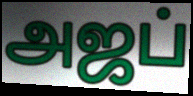
அஜப்